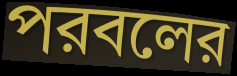
পরবলের